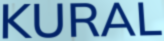
KURAL